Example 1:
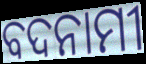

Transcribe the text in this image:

ବଦନାମୀ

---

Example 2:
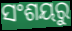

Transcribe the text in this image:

ସଂଶୟରୁ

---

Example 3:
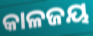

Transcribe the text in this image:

କାଳଜୟ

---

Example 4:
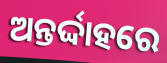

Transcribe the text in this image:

ଅନ୍ତର୍ଦ୍ଦାହରେ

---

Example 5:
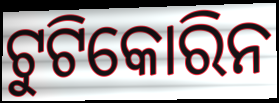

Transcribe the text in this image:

ଟୁଟିକୋରିନ